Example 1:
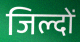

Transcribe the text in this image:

जिल्दों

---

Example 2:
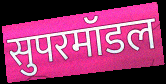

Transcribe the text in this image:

सुपरमॉडल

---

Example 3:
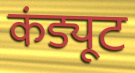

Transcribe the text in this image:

कंड्यूट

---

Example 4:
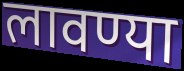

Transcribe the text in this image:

लावण्या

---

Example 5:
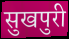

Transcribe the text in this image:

सुखपुरी